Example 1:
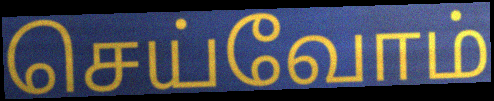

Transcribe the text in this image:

செய்வோம்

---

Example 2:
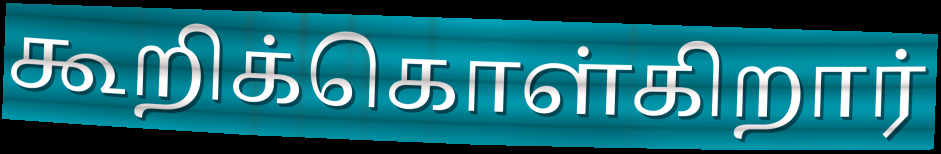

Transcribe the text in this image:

கூறிக்கொள்கிறார்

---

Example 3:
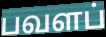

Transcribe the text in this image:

பவளப்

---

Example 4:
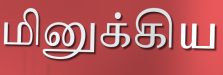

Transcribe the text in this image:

மினுக்கிய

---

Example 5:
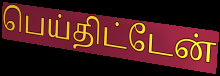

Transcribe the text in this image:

பெய்திட்டேன்